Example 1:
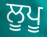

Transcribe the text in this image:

ਲੂਪੂ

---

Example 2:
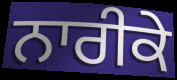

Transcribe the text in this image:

ਨਾਰੀਕੇ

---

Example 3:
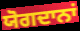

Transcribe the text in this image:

ਯੋਗਦਾਨਾਂ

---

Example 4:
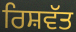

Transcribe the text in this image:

ਰਿਸ਼ਵੱਤ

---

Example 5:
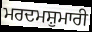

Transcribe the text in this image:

ਮਰਦਮਸ਼ੁਮਾਰੀ